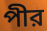
পীর